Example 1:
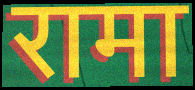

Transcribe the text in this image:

रामा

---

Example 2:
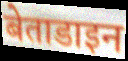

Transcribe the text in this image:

बेताडाइन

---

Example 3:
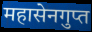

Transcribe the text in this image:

महासेनगुप्त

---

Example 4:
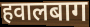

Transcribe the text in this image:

हवालबाग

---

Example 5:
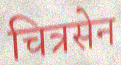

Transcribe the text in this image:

चित्रसेन